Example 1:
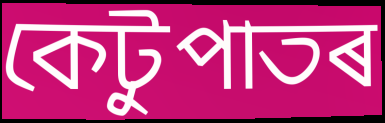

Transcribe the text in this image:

কেটুপাতৰ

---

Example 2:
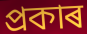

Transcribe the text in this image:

প্ৰকাৰ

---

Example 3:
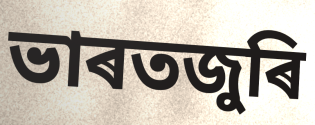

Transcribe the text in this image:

ভাৰতজুৰি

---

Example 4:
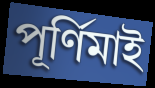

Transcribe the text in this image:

পূৰ্ণিমাই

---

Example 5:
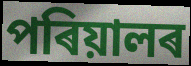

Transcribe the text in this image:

পৰিয়ালৰ